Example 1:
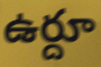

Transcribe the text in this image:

ఉర్దూ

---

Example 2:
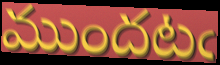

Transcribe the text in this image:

ముందటఁ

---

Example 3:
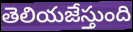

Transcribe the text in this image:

తెలియజేస్తుంది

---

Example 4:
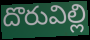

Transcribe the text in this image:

దొరువిల్లి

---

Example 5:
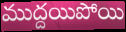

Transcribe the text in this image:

ముద్దయిపోయి